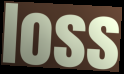
loss